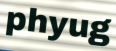
phyug